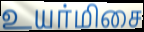
உயர்மிசை